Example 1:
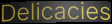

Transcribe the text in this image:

Delicacies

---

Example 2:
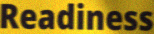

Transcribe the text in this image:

Readiness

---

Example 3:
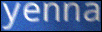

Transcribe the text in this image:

yenna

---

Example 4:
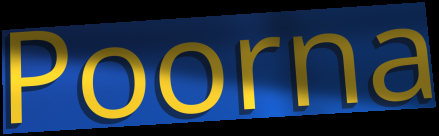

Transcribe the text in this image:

Poorna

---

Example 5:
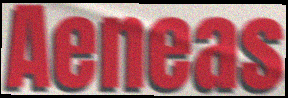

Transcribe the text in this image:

Aeneas